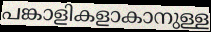
പങ്കാളികളാകാനുള്ള